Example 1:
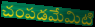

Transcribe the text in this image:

చంపడమేమిటి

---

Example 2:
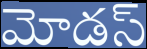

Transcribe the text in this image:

మోడస్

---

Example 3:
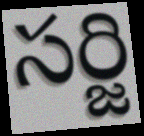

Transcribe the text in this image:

సర్జి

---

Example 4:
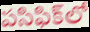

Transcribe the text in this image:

పసిఫిక్‌లో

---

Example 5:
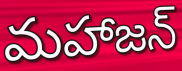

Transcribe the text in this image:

మహాజన్